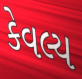
કેવલ્ય